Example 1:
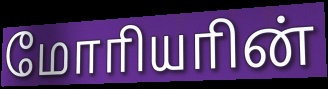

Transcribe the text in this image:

மோரியரின்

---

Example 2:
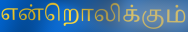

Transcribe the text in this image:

என்றொலிக்கும்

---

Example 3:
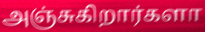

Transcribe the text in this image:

அஞ்சுகிறார்களா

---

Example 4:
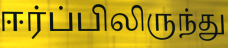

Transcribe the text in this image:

ஈர்ப்பிலிருந்து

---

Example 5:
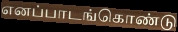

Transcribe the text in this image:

எனப்பாடங்கொண்டு